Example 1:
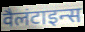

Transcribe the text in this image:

वैलंटाइन्स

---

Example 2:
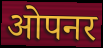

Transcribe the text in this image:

ओपनर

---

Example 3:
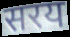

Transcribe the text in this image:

सरय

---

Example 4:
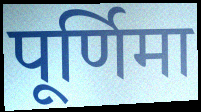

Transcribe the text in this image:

पूर्णिमा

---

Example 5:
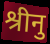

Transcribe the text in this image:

श्रीनु